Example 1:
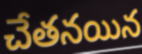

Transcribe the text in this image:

చేతనయిన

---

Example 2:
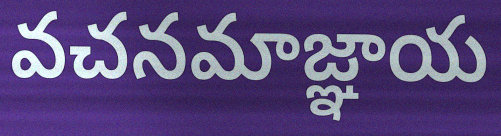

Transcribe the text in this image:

వచనమాజ్ఞాయ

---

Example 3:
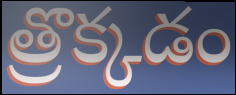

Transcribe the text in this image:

త్రొక్కడం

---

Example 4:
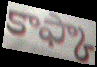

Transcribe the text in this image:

కాఫ్కా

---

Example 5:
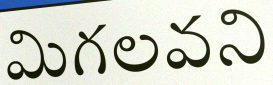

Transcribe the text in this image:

మిగలవని